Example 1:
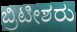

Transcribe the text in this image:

ಬ್ರಿಟೀಶರು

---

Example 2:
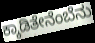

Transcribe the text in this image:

ಕ್ಕಾಡಿತೇನೆಂಬೆನು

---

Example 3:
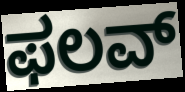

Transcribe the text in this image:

ಫಲವ್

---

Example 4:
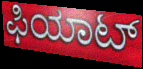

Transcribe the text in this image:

ಫಿಯಾಟ್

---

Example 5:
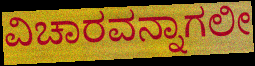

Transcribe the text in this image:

ವಿಚಾರವನ್ನಾಗಲೀ